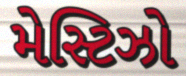
મેસ્ટિઝો